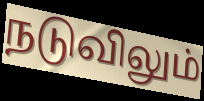
நடுவிலும்